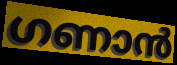
ഗണാൻ